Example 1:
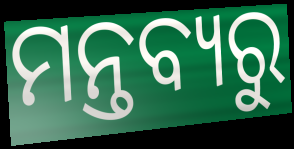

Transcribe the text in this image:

ମନ୍ତବ୍ୟରୁ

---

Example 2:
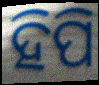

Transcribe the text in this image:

ହିପି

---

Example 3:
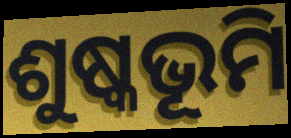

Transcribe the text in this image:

ଶୁଷ୍କଭୂମି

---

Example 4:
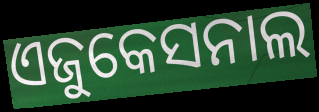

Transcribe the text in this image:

ଏଜୁକେସନାଲ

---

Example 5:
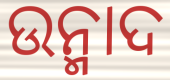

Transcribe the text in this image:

ଉନ୍ମାଦ